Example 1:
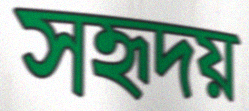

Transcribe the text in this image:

সহৃদয়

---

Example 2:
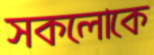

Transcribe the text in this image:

সকলোকে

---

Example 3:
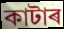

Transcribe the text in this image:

কাটাৰ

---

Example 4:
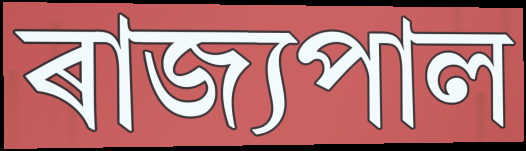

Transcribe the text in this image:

ৰাজ্যপাল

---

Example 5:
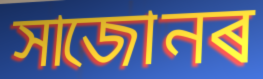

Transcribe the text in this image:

সাজোনৰ